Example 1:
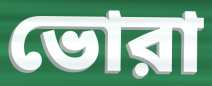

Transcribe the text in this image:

ভোরা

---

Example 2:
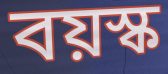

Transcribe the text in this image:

বয়স্ক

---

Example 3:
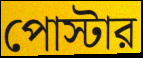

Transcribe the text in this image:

পোস্টার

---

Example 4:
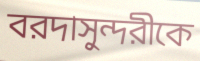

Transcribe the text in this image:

বরদাসুন্দরীকে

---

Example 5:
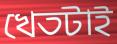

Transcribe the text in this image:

খেতটাই